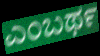
ಎಂಬರ್ಥ